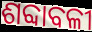
ଶବ୍ଦାବଳୀ